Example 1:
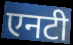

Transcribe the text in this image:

एनटी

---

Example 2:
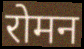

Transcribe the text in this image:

रोमन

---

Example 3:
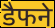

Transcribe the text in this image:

डैफने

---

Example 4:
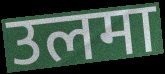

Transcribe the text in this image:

उलमा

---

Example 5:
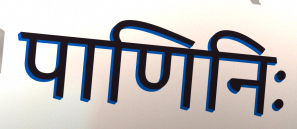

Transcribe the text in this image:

पाणिनिः